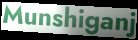
Munshiganj